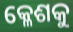
କ୍ଳେଶକୁ